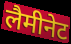
लैमीनेट